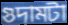
গুদামটা